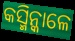
କସ୍ମିନ୍କାଳେ